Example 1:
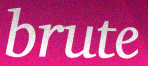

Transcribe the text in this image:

brute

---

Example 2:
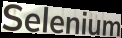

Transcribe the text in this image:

Selenium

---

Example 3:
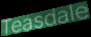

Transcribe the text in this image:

Teasdale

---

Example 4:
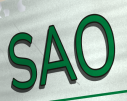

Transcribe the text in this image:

SAO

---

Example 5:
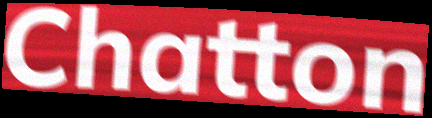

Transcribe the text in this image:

Chatton